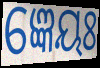
ଜ୍ଞେୟଃ